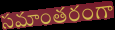
సమాంతరంగా